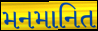
મનમાનિત